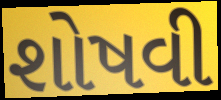
શોષવી